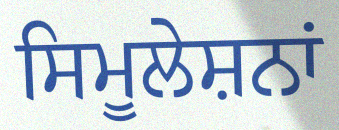
ਸਿਮੂਲੇਸ਼ਨਾਂ